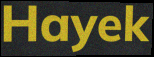
Hayek